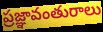
ప్రజ్ఞావంతురాలు